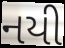
નયી